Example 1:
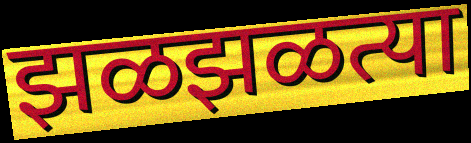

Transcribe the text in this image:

झळझळत्या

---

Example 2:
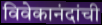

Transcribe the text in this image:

विवेकानंदांची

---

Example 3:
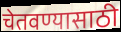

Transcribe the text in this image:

चेतवण्यासाठी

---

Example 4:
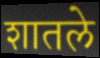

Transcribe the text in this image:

शातले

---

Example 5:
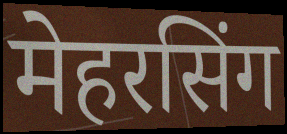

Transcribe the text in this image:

मेहरसिंग